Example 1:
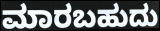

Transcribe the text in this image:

ಮಾರಬಹುದು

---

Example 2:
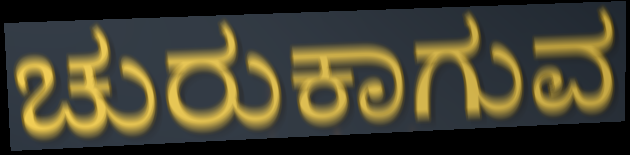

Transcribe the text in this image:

ಚುರುಕಾಗುವ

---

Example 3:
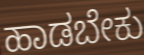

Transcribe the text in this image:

ಹಾಡಬೇಕು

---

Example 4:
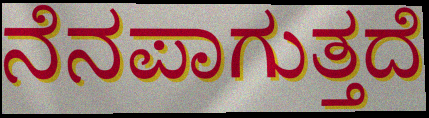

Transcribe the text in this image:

ನೆನಪಾಗುತ್ತದೆ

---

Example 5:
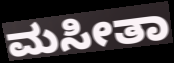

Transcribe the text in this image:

ಮಸೀತಾ